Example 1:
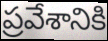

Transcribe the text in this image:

ప్రవేశానికి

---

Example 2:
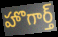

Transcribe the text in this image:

హొగార్త్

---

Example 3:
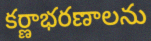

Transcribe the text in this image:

కర్ణాభరణాలను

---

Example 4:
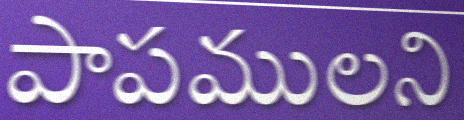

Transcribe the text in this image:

పాపములని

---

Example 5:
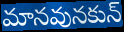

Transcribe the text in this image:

మానవునకున్